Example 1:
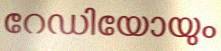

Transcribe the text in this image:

റേഡിയോയും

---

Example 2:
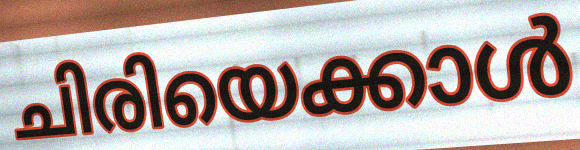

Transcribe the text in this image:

ചിരിയെക്കാൾ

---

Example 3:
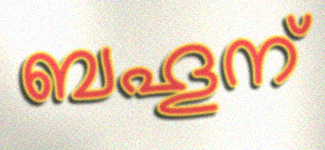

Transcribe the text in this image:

ബഹൂന്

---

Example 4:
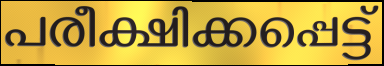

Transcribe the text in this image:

പരീക്ഷിക്കപ്പെട്ട്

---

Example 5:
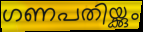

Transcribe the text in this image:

ഗണപതിയ്ക്കും